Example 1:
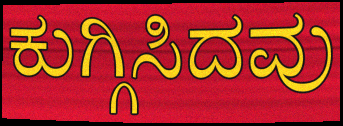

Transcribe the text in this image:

ಕುಗ್ಗಿಸಿದವು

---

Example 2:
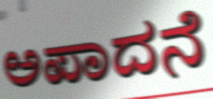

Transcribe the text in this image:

ಅಪಾದನೆ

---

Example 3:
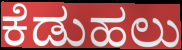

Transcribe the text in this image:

ಕೆಡುಹಲು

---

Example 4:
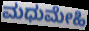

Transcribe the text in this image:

ಮಧುಮೇಹಿ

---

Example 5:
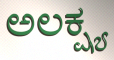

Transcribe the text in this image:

ಅಲಕ್ಷ್ಯ